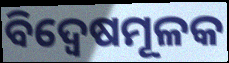
ବିଦ୍ୱେଷମୂଳକ